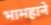
भामहाने